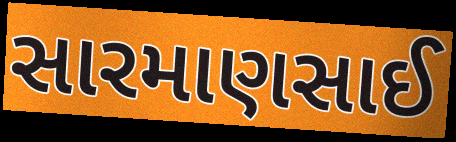
સારમાણસાઈ